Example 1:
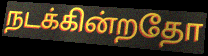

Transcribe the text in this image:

நடக்கின்றதோ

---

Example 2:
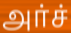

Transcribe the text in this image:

அர்ச்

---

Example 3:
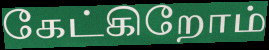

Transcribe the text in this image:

கேட்கிறோம்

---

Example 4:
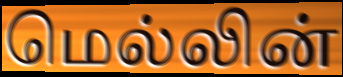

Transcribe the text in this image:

மெல்லின்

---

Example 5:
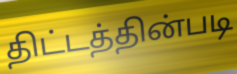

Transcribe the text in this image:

திட்டத்தின்படி